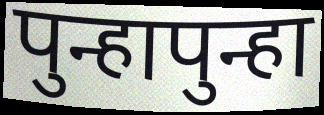
पुन्हापुन्हा